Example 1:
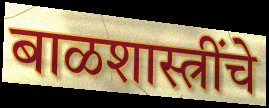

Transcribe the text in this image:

बाळशास्त्रींचे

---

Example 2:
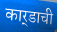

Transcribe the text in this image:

कार्डाची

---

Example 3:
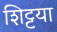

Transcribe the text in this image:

शिट्टया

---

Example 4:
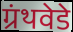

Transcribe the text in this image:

ग्रंथवेडे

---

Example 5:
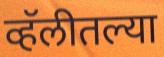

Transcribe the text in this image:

व्हॅलीतल्या